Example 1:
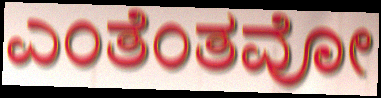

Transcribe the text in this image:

ಎಂತೆಂತವೋ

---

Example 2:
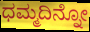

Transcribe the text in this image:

ಧಮ್ಮದಿನ್ನೋ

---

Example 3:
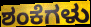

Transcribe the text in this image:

ಶಂಕೆಗಳು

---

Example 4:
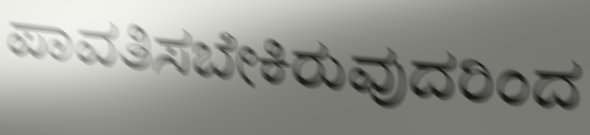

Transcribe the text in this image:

ಪಾವತಿಸಬೇಕಿರುವುದರಿಂದ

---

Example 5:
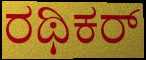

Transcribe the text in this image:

ರಥಿಕರ್